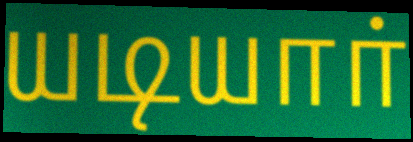
யடியார்